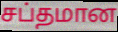
சப்தமான